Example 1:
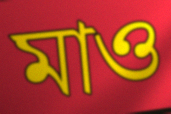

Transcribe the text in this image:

মাও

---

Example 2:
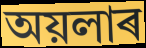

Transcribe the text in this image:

অয়লাৰ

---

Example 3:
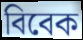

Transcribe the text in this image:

বিবেক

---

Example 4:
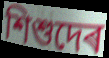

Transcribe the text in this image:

শিশুদেৰ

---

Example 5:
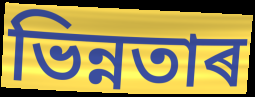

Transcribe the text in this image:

ভিন্নতাৰ